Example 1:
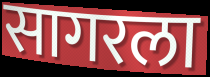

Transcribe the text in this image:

सागरला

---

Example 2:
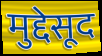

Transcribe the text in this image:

मुद्देसूद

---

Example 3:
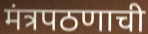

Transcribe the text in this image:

मंत्रपठणाची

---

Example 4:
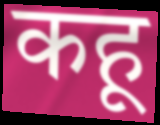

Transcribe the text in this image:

कहू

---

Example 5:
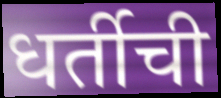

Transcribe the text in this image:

धर्तीची